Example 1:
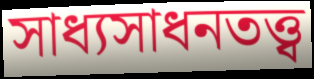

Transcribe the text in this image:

সাধ্যসাধনতত্ত্ব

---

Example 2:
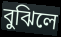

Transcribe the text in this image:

বুঝিলে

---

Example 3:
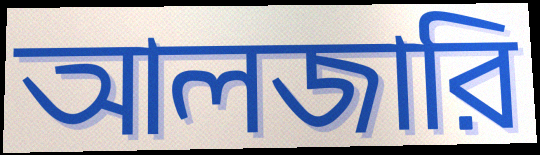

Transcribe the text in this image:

আলজারি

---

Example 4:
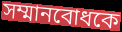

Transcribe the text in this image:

সম্মানবোধকে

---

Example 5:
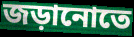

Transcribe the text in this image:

জড়ানোতে